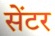
सेंटर